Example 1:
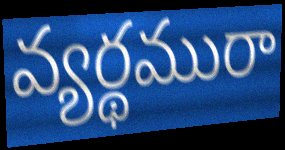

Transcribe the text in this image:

వ్యర్థమురా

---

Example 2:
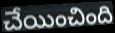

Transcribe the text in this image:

చేయించింది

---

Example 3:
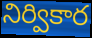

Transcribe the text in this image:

నిర్వికార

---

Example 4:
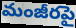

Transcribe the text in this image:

మంజీరపై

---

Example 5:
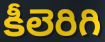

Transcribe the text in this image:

కీలెరిగి